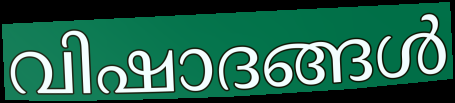
വിഷാദങ്ങൾ